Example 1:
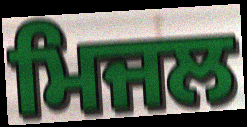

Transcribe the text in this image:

ਮਿਜਲ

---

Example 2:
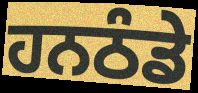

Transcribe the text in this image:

ਹਨਠੰਡੇ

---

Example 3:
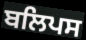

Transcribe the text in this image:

ਬਲਿਪਸ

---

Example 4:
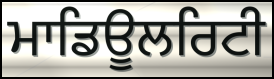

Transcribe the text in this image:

ਮਾਡਿਊਲਰਿਟੀ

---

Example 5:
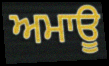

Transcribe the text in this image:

ਅਮਾਊ